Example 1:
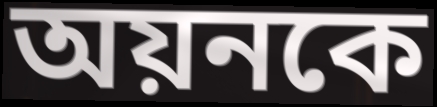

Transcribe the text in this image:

অয়নকে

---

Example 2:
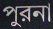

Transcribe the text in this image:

পুরনা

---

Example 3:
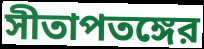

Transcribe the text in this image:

সীতাপতঙ্গের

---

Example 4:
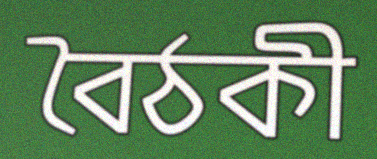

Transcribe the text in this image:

বৈঠকী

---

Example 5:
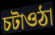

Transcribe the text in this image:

চটাওঠা